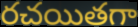
రచయితగా